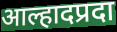
आल्हादप्रदा